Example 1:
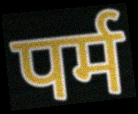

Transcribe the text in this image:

पर्म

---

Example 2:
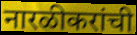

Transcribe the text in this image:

नारळीकरांची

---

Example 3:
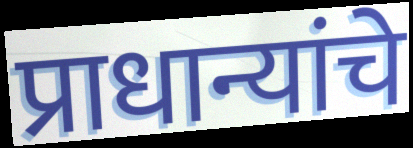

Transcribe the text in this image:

प्राधान्यांचे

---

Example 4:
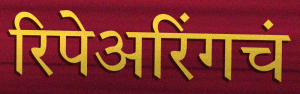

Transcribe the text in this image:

रिपेअरिंगचं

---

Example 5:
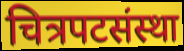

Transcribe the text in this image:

चित्रपटसंस्था